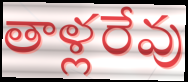
తాళ్లరేవు